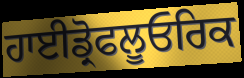
ਹਾਈਡ੍ਰੋਫਲੂਓਰਿਕ